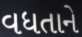
વધતાને